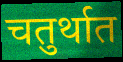
चतुर्थात